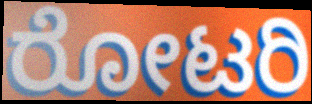
ರೋಟರಿ